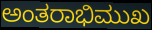
ಅಂತರಾಭಿಮುಖ